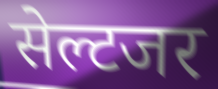
सेल्टजर